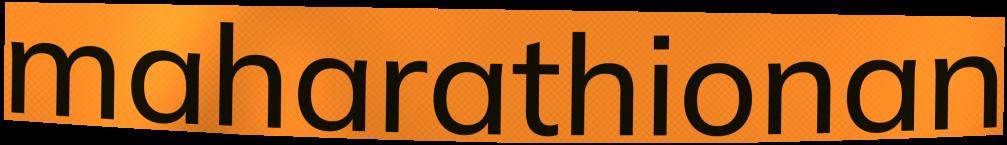
maharathionan